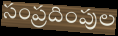
సంప్రదింపుల